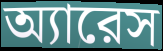
অ্যারেস